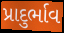
પ્રાદુર્ભાવ